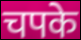
चपके